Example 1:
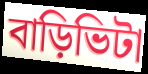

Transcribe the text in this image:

বাড়িভিটা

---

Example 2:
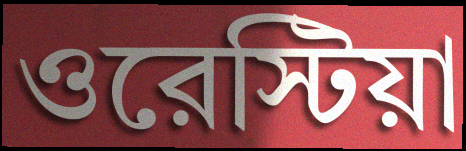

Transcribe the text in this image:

ওরেস্টিয়া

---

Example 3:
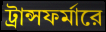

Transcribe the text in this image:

ট্রান্সফর্মারে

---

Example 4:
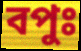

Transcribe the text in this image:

বপুঃ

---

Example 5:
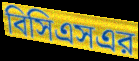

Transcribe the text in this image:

বিসিএসএর